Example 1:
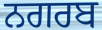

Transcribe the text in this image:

ਨਗਰਬ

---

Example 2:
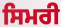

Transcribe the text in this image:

ਸਿਮਰੀ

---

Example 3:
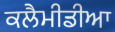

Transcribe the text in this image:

ਕਲੈਮੀਡੀਆ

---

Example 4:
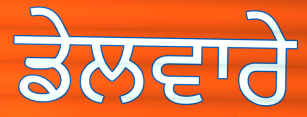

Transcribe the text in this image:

ਡੇਲਵਾਰੇ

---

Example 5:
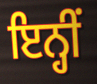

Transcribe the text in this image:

ਇਨ੍ਹੀਂ